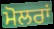
ਮੋਲਰਾਂ